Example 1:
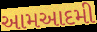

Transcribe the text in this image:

આમઆદમી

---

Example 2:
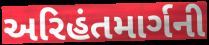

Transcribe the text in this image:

અરિહંતમાર્ગની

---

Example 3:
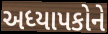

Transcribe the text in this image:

અધ્યાપકોને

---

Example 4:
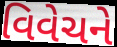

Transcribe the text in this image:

વિવેચને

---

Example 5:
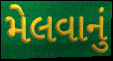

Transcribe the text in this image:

મેલવાનું